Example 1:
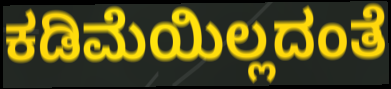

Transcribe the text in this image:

ಕಡಿಮೆಯಿಲ್ಲದಂತೆ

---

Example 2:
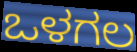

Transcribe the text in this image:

ಒಳಗಲ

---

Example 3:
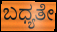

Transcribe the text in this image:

ಬಧ್ಯತೇ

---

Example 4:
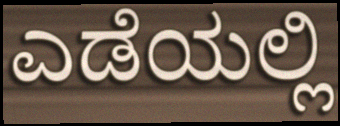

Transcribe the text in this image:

ಎಡೆಯಲ್ಲಿ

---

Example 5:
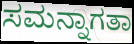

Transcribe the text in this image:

ಸಮನ್ನಾಗತಾ